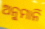
ଅନୁମାନି